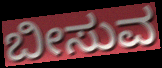
ಬೀಸುವ